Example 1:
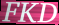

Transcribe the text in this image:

FKD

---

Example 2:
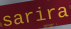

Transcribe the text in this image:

sarira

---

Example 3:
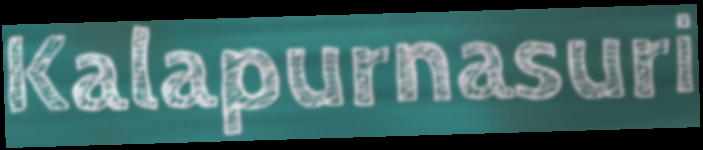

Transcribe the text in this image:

Kalapurnasuri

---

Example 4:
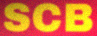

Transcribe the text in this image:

SCB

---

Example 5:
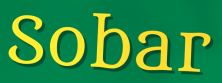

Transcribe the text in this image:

Sobar